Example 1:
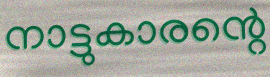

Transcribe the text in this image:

നാട്ടുകാരന്റെ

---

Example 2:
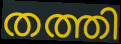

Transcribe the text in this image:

തത്തി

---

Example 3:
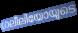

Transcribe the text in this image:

ഗലീലിയോയുടെ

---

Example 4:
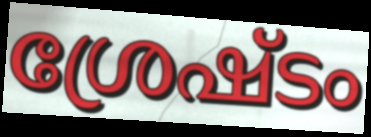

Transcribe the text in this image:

ശ്രേഷ്ടം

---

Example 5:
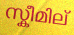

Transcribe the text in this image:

സ്കീമില്